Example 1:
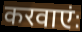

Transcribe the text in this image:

करवाएंः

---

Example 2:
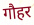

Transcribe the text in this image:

गौहर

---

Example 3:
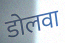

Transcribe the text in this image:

डोलवा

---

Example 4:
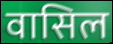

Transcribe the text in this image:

वासिल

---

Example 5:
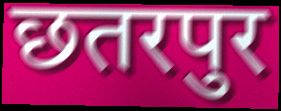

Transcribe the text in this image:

छतरपुर